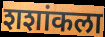
शशांकला